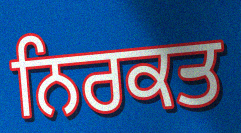
ਨਿਰਕਤ